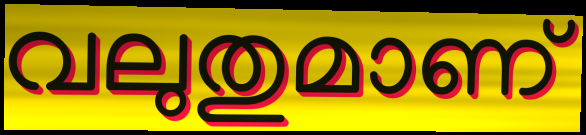
വലുതുമാണ്